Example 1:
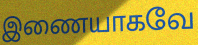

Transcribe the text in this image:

இணையாகவே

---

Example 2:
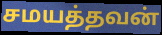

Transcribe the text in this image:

சமயத்தவன்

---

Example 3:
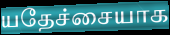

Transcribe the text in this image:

யதேச்சையாக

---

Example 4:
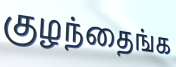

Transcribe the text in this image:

குழந்தைங்க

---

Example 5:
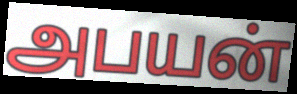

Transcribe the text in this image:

அபயன்